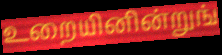
உறையினின்றுங்